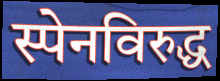
स्पेनविरुद्ध